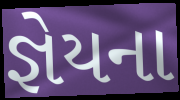
જ્ઞેયના